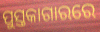
ପୁସ୍ତକାଗାରରେ